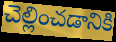
చెల్లించడానికి